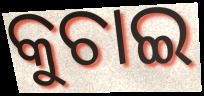
କୁଚାଇ